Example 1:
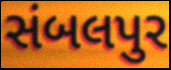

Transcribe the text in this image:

સંબલપુર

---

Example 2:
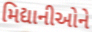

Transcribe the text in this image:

મિદ્યાનીઓને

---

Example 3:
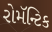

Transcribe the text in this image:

રોમૅન્ટિક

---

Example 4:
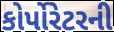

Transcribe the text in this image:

કોર્પોરેટરની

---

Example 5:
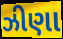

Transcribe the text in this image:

ઝીણા